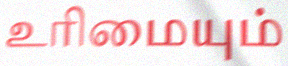
உரிமையும்